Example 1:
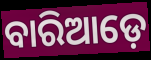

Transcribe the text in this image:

ବାରିଆଡ଼େ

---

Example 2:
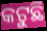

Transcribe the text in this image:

କଟୁଛି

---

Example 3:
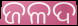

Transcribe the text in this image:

ଜଳଦ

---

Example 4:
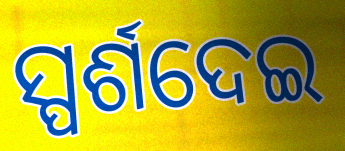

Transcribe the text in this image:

ସ୍ପର୍ଶଦେଇ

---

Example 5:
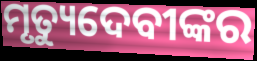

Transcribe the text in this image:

ମୃତ୍ୟୁଦେବୀଙ୍କର